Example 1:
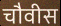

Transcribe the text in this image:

चौवीस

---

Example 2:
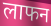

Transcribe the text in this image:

लाफन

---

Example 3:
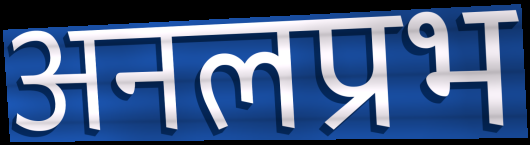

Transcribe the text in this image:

अनलप्रभ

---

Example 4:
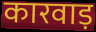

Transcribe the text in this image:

कारवाड़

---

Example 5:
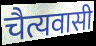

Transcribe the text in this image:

चैत्यवासी